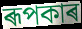
ৰূপকাৰ